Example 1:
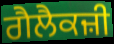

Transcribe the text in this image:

ਗੈਲੈਕਜ਼ੀ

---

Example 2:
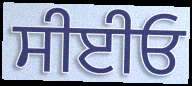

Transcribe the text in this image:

ਸੀਈਓ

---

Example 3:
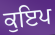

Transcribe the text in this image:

ਕੁਇਪ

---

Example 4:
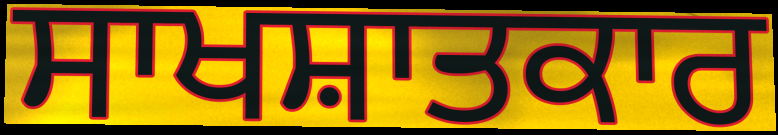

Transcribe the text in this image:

ਸਾਖਸ਼ਾਤਕਾਰ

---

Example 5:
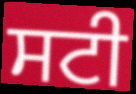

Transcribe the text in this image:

ਸਟੀ